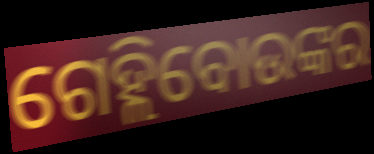
ଗେହ୍ଲିବୋଉଙ୍କର